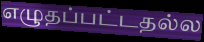
எழுதப்பட்டதல்ல